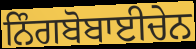
ਨਿੰਗਬੋਬਾਈਚੇਨ